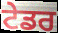
ਟੇਡਰ